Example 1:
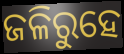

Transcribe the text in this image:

ଜଳିରୁହେ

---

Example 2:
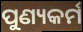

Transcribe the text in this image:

ପୁଣ୍ୟକର୍ମ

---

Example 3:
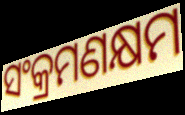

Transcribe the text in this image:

ସଂକ୍ରମଣକ୍ଷମ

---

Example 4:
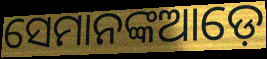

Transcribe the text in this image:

ସେମାନଙ୍କଆଡ଼େ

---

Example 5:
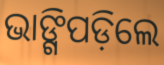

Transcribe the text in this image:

ଭାଙ୍ଗିପଡ଼ିଲେ